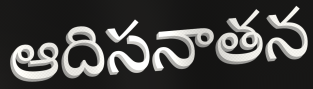
ఆదిసనాతన